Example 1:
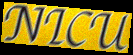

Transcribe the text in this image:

NICU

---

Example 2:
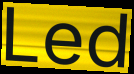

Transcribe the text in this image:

Led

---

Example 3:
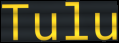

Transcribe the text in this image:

Tulu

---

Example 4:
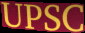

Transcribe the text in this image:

UPSC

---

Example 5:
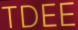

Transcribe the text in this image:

TDEE